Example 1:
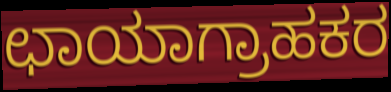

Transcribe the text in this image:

ಛಾಯಾಗ್ರಾಹಕರ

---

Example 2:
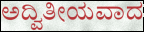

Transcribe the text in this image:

ಅದ್ವಿತೀಯವಾದ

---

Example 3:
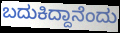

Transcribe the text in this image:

ಬದುಕಿದ್ದಾನೆಂದು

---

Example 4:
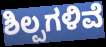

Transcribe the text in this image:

ಶಿಲ್ಪಗಳಿವೆ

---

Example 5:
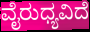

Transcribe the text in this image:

ವೈರುಧ್ಯವಿದೆ